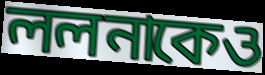
ললনাকেও